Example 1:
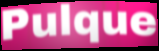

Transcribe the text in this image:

Pulque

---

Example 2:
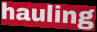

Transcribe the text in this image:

hauling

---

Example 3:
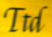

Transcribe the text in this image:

Ttd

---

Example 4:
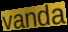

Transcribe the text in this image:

vanda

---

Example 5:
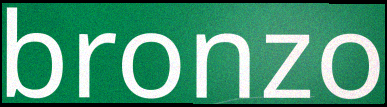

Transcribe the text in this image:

bronzo